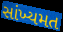
સાંખ્યમત